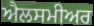
ਐਲਸਮੀਅਰ